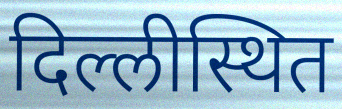
दिल्लीस्थित